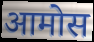
आमोस